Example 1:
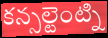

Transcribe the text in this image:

కన్సల్టెంట్ని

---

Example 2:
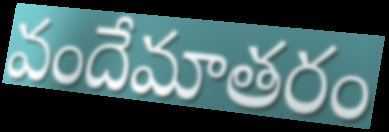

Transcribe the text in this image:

వందేమాతరం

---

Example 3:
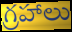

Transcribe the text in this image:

గ్రహాలు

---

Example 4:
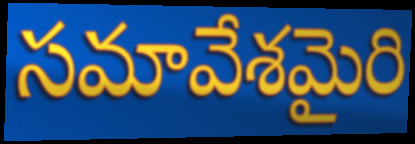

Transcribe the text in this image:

సమావేశమైరి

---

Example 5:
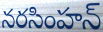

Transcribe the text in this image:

నరసింహన్